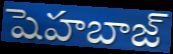
షెహబాజ్